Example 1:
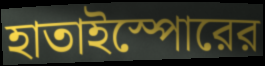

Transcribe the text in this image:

হাতাইস্পোরের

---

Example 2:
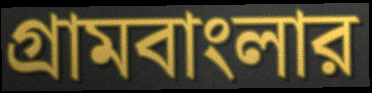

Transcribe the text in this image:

গ্রামবাংলার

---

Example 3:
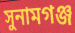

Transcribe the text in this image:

সুনামগঞ্জ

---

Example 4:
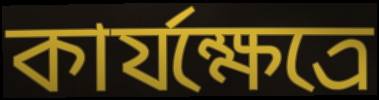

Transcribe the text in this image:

কার্যক্ষেত্রে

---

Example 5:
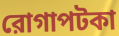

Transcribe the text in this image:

রোগাপটকা